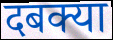
दबक्या